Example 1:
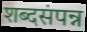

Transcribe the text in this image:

शब्दसंपन्न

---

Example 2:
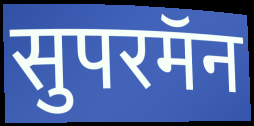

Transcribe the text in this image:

सुपरमॅन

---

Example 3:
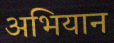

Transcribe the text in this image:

अभियान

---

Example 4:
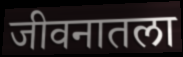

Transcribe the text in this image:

जीवनातला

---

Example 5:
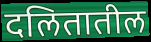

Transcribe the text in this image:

दलितातील